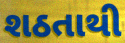
શઠતાથી